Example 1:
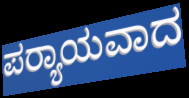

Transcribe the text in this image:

ಪರ‍್ಯಾಯವಾದ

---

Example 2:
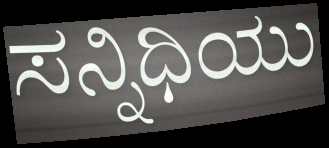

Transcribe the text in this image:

ಸನ್ನಿಧಿಯು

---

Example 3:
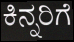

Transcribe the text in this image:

ಕಿನ್ನರಿಗೆ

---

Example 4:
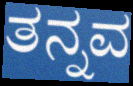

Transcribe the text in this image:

ತನ್ನವ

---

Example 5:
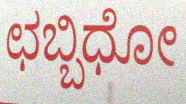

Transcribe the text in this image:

ಛಬ್ಬಿಧೋ